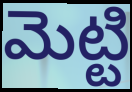
మెట్టి